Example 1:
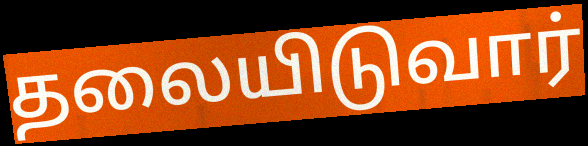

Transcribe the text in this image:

தலையிடுவார்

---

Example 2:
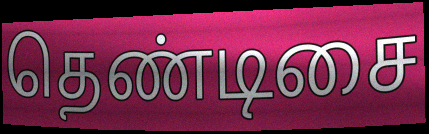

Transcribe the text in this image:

தெண்டிசை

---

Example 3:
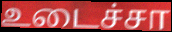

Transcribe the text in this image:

உடைச்சா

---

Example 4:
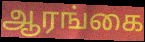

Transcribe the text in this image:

ஆரங்கை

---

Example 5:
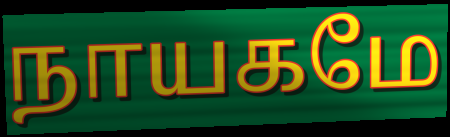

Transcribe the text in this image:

நாயகமே